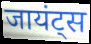
जायंट्स